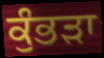
ਕੁੰਭੜਾ